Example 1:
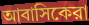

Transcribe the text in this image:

আবাসিকেরা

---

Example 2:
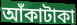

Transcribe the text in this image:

আঁকাটাকা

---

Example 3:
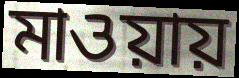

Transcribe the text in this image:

মাওয়ায়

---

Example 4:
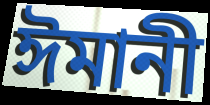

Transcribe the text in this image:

ঈমানী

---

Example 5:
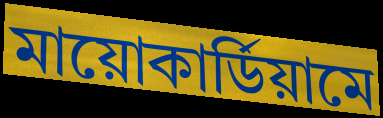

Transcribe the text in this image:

মায়োকার্ডিয়ামে